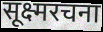
सूक्ष्मरचना